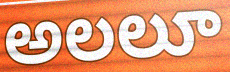
అలలూ